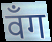
वँग